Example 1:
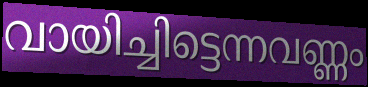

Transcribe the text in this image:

വായിച്ചിട്ടെന്നവണ്ണം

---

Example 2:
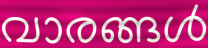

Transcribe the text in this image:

വാരങ്ങൾ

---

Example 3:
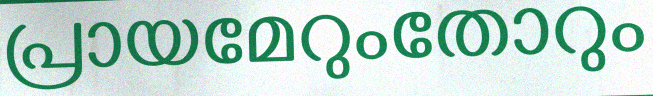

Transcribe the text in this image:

പ്രായമേറുംതോറും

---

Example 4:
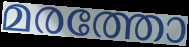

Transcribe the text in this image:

മരത്തോ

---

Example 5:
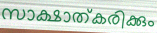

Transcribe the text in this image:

സാക്ഷാത്കരിക്കും